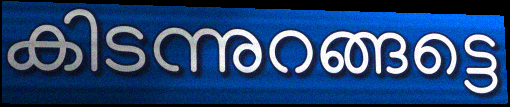
കിടന്നുറങ്ങട്ടെ